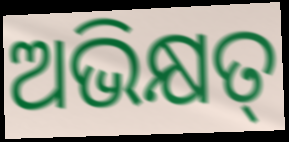
ଅଭିକ୍ଷତ୍